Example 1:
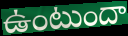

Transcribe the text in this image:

ఉంటుందా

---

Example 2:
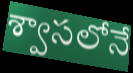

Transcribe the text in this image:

శ్వాసలోనే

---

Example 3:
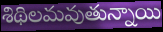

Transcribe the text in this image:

శిథిలమవుతున్నాయి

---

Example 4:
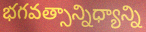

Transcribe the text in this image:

భగవత్సాన్నిధ్యాన్ని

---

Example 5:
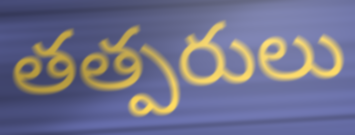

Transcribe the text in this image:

తత్పరులు